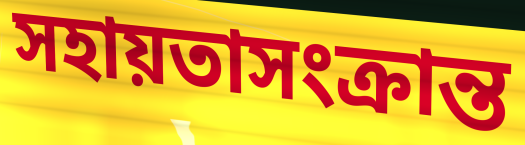
সহায়তাসংক্রান্ত